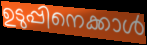
ഉടുപ്പിനെക്കാൾ